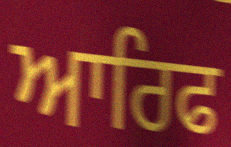
ਆਰਿਫ